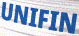
UNIFIN